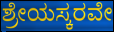
ಶ್ರೇಯಸ್ಕರವೇ